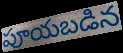
పూయబడిన